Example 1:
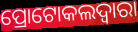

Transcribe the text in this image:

ପ୍ରୋଟୋକଲଦ୍ୱାରା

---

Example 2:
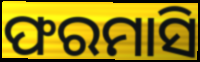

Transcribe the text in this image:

ଫରମାସି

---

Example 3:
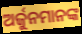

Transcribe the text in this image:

ଅର୍ଜୁନମାନଙ୍କ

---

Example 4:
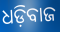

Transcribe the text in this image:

ଧଡ଼ିବାଜ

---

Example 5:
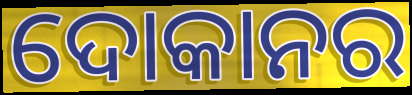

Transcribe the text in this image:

ଦୋକାନର